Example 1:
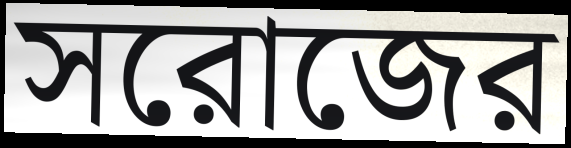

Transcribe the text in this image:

সরোজের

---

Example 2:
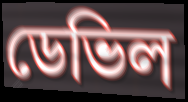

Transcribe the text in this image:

ডেভিল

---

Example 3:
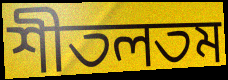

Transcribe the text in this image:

শীতলতম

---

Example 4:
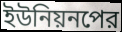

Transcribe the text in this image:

ইউনিয়নপের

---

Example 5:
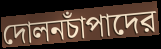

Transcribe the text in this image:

দোলনচাঁপাদের